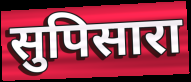
सुपिसारा